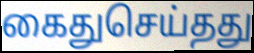
கைதுசெய்தது